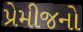
પ્રેમીજનો